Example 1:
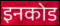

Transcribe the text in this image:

इनकोड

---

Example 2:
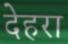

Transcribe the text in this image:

देहरा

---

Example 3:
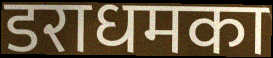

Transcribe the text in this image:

डराधमका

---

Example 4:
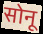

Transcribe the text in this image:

सोनू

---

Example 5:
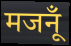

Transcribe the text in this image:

मजनूँ